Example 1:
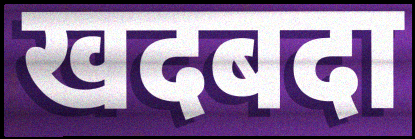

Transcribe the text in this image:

खदबदा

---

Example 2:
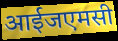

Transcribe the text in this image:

आईजएमसी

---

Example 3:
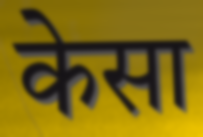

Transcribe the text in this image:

केसा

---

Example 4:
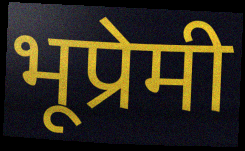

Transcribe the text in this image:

भूप्रेमी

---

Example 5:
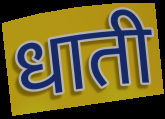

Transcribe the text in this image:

धाती